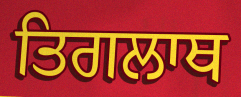
ਤਿਗਲਾਥ